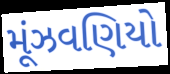
મૂંઝવણિયો